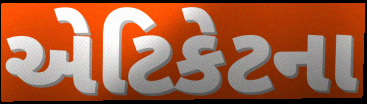
એટિકેટના